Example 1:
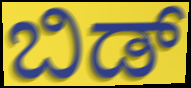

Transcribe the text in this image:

ಬಿಡ್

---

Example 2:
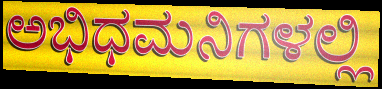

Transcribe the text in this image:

ಅಭಿಧಮನಿಗಳಲ್ಲಿ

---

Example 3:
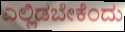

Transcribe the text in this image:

ಎಲ್ಲಿಡಬೇಕೆಂದು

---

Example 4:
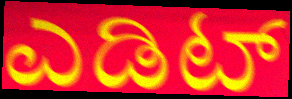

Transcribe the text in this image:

ಎಡಿಟ್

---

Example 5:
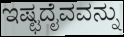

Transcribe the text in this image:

ಇಷ್ಟದೈವವನ್ನು